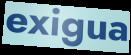
exigua